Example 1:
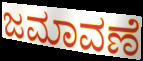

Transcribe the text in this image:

ಜಮಾವಣೆ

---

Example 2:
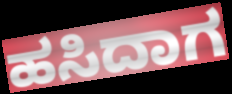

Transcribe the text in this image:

ಹಸಿದಾಗ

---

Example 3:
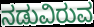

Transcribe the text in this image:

ನಡುವಿರುವ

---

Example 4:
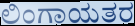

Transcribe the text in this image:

ಲಿಂಗಾಯತರ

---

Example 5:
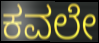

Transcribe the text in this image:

ಕವಲೇ